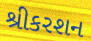
શ્રીકરશન